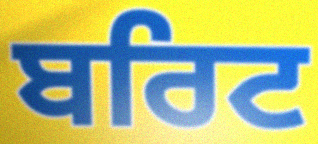
ਬਰਿਟ